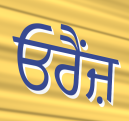
ਓਰੈਂਜ਼